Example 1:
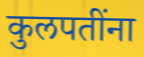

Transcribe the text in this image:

कुलपतींना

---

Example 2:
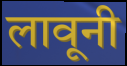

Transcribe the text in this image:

लावूनी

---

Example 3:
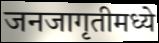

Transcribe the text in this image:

जनजागृतीमध्ये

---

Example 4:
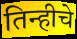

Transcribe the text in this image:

तिन्हीचे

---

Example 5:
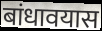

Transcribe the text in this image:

बांधावयास